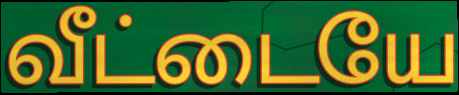
வீட்டையே